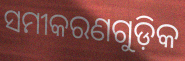
ସମୀକରଣଗୁଡ଼ିକ